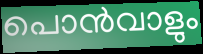
പൊൻവാളും